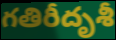
గతిరీదృశీ